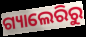
ଗ୍ୟାଲେରିରୁ